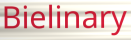
Bielinary